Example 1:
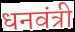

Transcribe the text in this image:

धनवंत्री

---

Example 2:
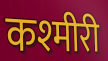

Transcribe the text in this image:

कश्‍मीरी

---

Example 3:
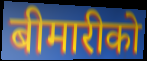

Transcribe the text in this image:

बीमारीको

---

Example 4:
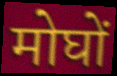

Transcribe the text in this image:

मोघों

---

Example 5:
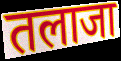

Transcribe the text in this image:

तलाजा